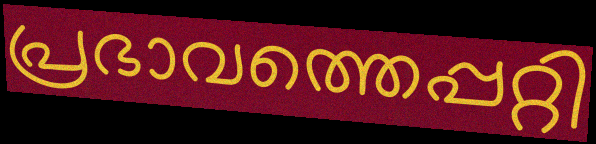
പ്രഭാവത്തെപ്പറ്റി